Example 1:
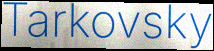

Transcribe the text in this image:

Tarkovsky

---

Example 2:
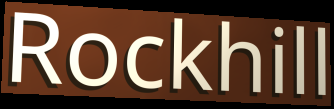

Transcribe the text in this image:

Rockhill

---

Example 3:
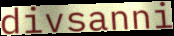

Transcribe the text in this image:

divsanni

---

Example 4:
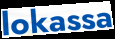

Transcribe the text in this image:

lokassa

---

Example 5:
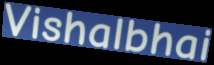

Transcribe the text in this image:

Vishalbhai